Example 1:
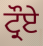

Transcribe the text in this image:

ਟ੍ਰੌਏ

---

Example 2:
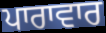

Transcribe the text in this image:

ਪਾਰਾਵਾਰ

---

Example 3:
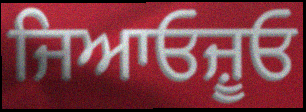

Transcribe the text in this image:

ਜਿਆਓਜ਼ੂਓ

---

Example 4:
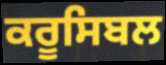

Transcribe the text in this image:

ਕਰੂਸਿਬਲ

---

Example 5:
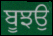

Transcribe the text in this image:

ਬੂਝਉ